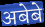
अबेबे